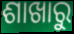
ଶାଖାରୁ